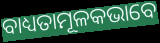
ବାଧ୍ୟତାମୂଳକଭାବେ